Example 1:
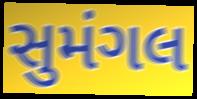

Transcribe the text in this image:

સુમંગલ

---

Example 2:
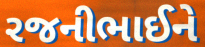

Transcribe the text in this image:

રજનીભાઈને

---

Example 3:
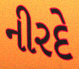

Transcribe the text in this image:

નીરદે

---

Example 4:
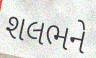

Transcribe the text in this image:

શલભને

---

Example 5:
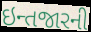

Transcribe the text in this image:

ઇન્તજારની